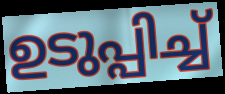
ഉടുപ്പിച്ച്